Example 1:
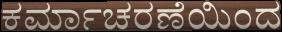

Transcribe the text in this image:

ಕರ್ಮಾಚರಣೆಯಿಂದ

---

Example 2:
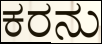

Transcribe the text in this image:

ಕರನು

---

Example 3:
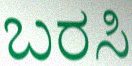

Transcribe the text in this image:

ಬರಸಿ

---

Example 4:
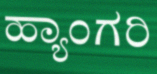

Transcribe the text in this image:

ಹ್ಯಾಂಗರಿ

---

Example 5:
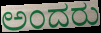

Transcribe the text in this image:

ಅಂದರು